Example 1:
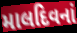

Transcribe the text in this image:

માલદિવનાં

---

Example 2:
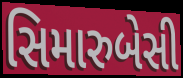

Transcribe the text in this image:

સિમારુબેસી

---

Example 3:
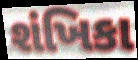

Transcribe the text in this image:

શંખિકા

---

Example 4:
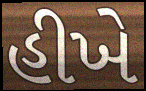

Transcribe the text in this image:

હીખે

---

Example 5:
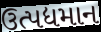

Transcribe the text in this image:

ઉત્પદ્યમાન